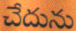
చేదును